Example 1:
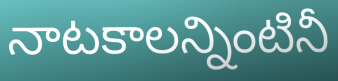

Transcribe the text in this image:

నాటకాలన్నింటినీ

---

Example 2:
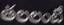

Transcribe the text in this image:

తలలంటే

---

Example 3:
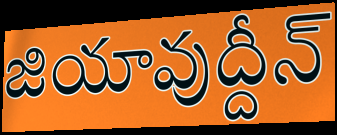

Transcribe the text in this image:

జియావుద్దీన్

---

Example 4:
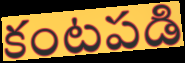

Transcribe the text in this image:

కంటపడి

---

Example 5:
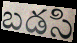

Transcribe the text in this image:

బడసి